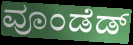
ವೂಂಡೆಡ್